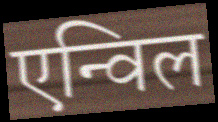
एन्विल